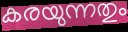
കരയുന്നതും